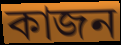
কাজন